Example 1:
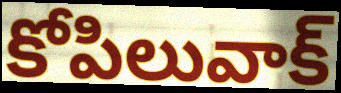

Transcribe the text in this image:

కోపిలువాక్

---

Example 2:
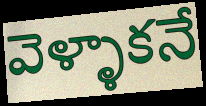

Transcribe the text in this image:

వెళ్ళాకనే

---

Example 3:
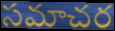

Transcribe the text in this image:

సమాచర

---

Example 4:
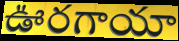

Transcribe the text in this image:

ఊరగాయా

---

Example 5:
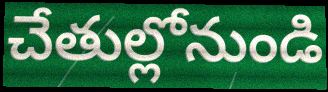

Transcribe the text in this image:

చేతుల్లోనుండి